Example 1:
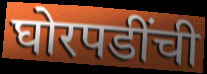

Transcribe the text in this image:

घोरपडींची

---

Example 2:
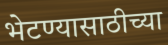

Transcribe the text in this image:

भेटण्यासाठीच्या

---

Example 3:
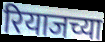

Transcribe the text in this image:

रियाजच्या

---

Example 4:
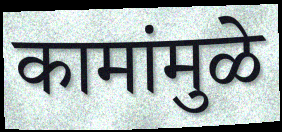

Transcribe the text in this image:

कामांमुळे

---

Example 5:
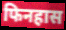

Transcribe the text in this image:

फिनहास